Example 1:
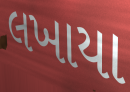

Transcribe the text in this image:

લખાયા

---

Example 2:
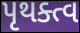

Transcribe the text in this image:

પૃથક્ત્વ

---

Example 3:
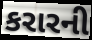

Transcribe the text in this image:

કરારની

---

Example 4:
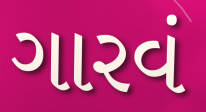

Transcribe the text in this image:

ગારવં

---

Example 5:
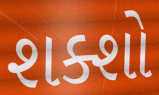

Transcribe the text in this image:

શક્શો